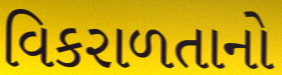
વિકરાળતાનો